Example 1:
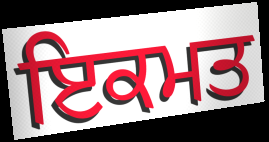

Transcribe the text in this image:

ਇਕਮਤ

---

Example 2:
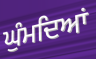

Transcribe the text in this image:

ਘੁੰਮਦਿਆਂ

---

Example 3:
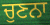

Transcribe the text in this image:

ਚੁਣਨਾ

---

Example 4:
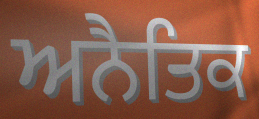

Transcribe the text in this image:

ਅਨੈਤਿਕ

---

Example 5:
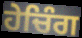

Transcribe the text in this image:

ਹੇਚਿੰਗ